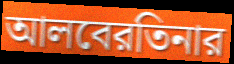
আলবেরতিনার